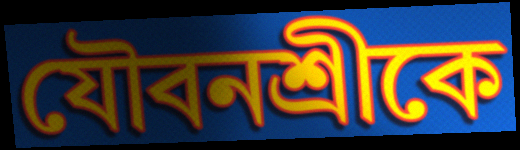
যৌবনশ্রীকে